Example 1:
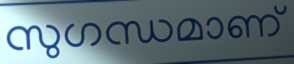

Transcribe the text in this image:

സുഗന്ധമാണ്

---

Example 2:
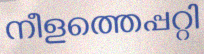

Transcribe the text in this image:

നീളത്തെപ്പറ്റി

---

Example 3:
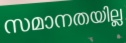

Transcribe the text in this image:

സമാനതയില്ല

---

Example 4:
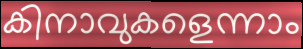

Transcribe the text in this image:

കിനാവുകളെന്നാം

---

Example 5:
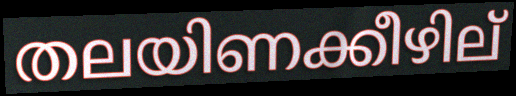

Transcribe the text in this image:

തലയിണക്കീഴില്